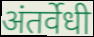
अंतर्वेधी